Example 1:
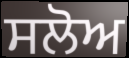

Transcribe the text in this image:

ਸਲੋਅ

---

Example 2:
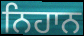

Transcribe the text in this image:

ਨਿਹਾਨ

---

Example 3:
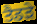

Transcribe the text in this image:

ਤੈਡੜੇ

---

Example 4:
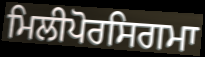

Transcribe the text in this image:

ਮਿਲੀਪੋਰਸਿਗਮਾ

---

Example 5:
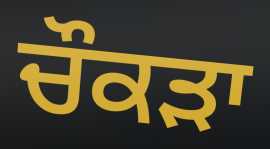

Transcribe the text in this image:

ਚੌਕੜਾ